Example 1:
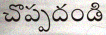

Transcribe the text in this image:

చొప్పదండి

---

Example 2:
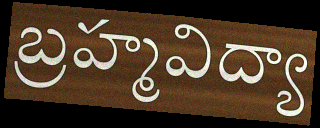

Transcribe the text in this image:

బ్రహ్మవిద్యా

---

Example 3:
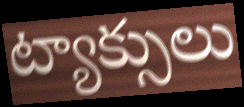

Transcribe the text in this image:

ట్యాక్సులు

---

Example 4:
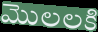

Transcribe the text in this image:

మొలలకి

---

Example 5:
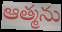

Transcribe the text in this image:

ఆత్మను